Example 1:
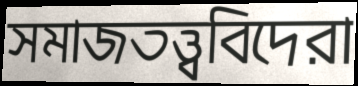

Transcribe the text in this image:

সমাজতত্ত্ববিদেরা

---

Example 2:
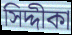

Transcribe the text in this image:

সিদ্দীকা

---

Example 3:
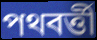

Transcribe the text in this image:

পথবর্ত্তী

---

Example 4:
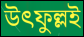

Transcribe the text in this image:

উৎফুল্লই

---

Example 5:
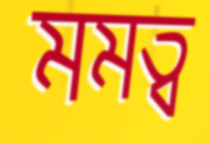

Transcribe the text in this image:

মমত্ব